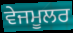
ਵੇਜਮੂਲਰ